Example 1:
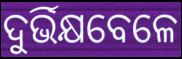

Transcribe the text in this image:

ଦୁର୍ଭିକ୍ଷବେଳେ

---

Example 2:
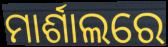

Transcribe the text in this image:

ମାର୍ଶାଲରେ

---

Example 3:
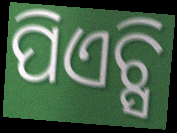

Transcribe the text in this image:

ପିଏଚ୍ସି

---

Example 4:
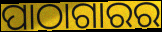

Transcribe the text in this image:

ପାଠାଗାରର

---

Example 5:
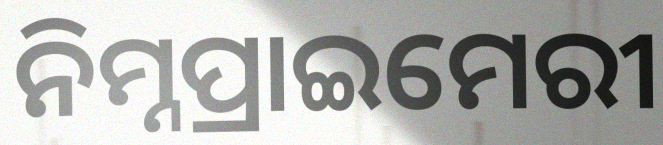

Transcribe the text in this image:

ନିମ୍ନପ୍ରାଇମେରୀ